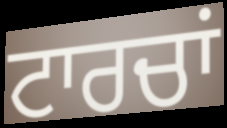
ਟਾਰਚਾਂ